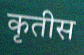
कृतीस